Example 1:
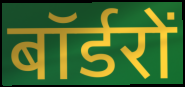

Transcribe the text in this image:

बॉर्डरों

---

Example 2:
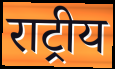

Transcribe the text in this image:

राट्रीय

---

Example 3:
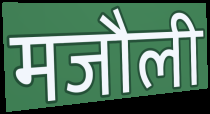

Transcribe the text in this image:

मजौली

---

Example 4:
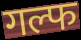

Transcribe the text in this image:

गल्फ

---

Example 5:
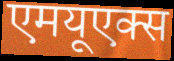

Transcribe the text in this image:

एमयूएक्स